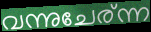
വന്നുചേര്ന്ന